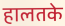
हालतके